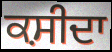
ਕ਼ਸੀਦਾ